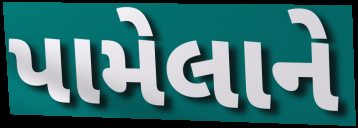
પામેલાને